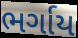
ભર્ગાય